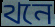
থনে